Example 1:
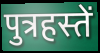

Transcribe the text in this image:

पुत्रहस्तें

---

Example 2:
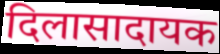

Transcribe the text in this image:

दिलासादायक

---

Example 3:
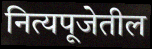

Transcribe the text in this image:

नित्यपूजेतील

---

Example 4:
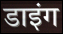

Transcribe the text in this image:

डाइंग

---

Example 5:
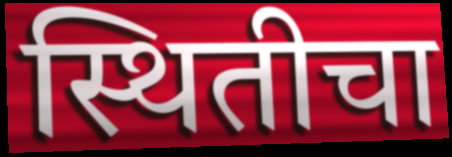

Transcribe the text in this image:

स्थितीचा